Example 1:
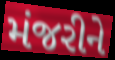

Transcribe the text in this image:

મંજરીને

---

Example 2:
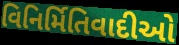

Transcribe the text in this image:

વિનિર્મિતિવાદીઓ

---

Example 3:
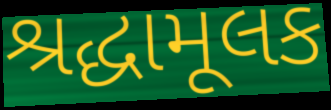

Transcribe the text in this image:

શ્રદ્ધામૂલક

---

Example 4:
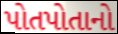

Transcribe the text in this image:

પોતપોતાનો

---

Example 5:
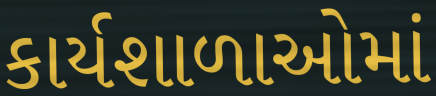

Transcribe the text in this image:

કાર્યશાળાઓમાં